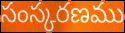
సంస్కరణము